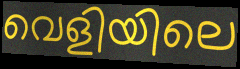
വെളിയിലെ